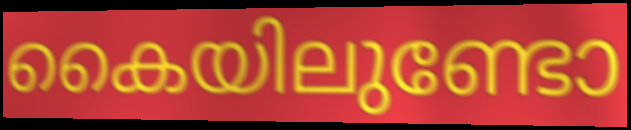
കൈയിലുണ്ടോ